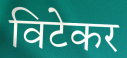
विटेकर